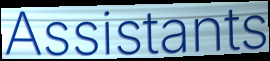
Assistants